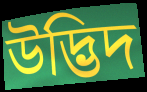
উদ্ভিদ